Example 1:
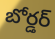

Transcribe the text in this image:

బోర్డర్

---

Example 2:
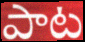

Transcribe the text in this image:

పాట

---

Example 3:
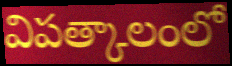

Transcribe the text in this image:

విపత్కాలంలో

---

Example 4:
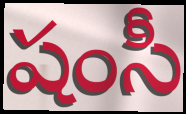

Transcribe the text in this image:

షంసీ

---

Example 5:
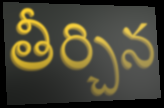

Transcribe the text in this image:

తీర్చిన